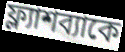
ফ্ল্যাশব্যাকে